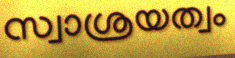
സ്വാശ്രയത്വം